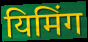
यिमिंग